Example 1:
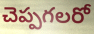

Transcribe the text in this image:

చెప్పగలరో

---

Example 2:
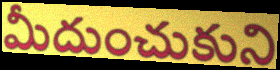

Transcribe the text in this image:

మీదుంచుకుని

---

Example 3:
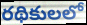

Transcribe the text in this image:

రథికులలో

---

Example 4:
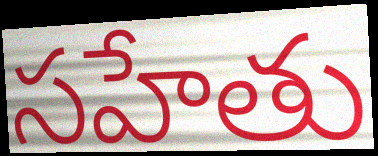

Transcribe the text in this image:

సహేతు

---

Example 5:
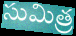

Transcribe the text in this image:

సుమిత్ర